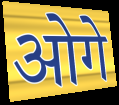
ओगे